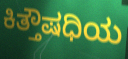
ಕಿತ್ತೌಷಧಿಯ